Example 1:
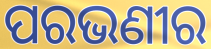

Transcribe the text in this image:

ପରଭଣୀର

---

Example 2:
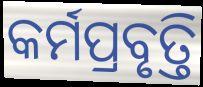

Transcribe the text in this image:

କର୍ମପ୍ରବୃତ୍ତି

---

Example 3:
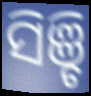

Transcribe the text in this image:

ସିଞ୍ଚି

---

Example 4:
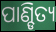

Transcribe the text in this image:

ପାଣ୍ଡିତ୍ୟ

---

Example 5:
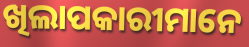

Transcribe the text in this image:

ଖିଲାପକାରୀମାନେ